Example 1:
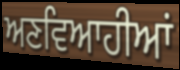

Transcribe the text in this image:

ਅਣਵਿਆਹੀਆਂ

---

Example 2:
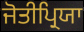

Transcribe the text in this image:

ਜੋਤੀਪ੍ਰਿਯਾ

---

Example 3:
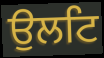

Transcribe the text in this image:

ਉਲਟਿ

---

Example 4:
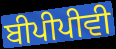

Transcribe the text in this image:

ਬੀਪੀਪੀਵੀ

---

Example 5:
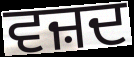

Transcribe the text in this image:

ਵਜ਼ਦ